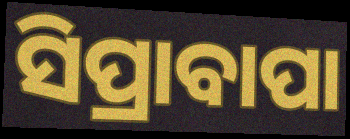
ସିପ୍ରାବାପା